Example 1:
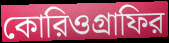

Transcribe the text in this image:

কোরিওগ্রাফির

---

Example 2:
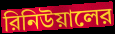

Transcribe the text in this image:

রিনিউয়ালের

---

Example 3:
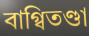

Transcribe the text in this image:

বাগ্বিতণ্ডা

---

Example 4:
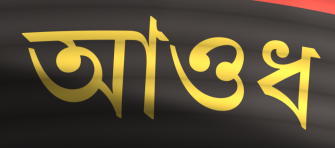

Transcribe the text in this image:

আওধ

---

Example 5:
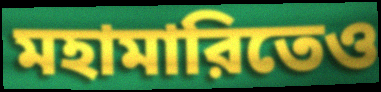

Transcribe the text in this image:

মহামারিতেও